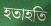
হতাহতি